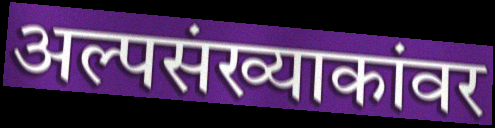
अल्पसंख्याकांवर